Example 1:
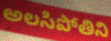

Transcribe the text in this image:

అలసిపోతిని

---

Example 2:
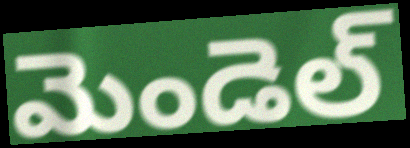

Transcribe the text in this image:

మెండెల్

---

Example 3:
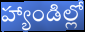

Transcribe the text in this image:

హ్యాండిల్లో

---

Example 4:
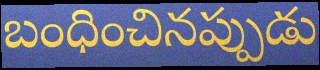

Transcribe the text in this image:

బంధించినప్పుడు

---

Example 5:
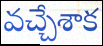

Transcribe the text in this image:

వచ్చేశాక